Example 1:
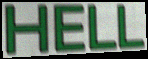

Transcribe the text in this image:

HELL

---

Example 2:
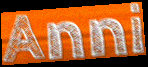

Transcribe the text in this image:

Anni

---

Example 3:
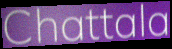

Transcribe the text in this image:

Chattala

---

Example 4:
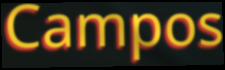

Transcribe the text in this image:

Campos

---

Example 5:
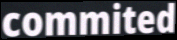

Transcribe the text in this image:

commited